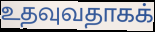
உதவுவதாகக்